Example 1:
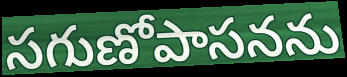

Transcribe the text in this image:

సగుణోపాసనను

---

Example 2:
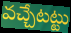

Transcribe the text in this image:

వచ్చేటట్టు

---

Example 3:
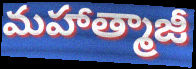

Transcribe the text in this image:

మహాత్మాజీ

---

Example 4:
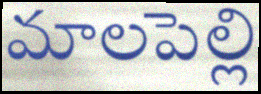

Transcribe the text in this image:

మాలపెల్లి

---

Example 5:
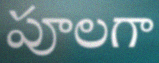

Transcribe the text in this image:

పూలగా